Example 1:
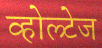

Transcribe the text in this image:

व्होल्टेज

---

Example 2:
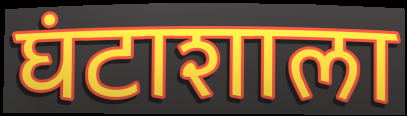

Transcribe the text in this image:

घंटाशाला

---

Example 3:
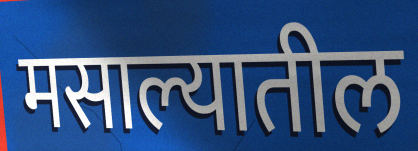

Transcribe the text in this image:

मसाल्यातील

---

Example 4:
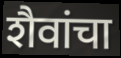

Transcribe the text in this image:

शैवांचा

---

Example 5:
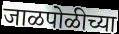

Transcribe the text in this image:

जाळपोळीच्या